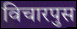
विचारपुस